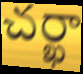
చర్ఖా